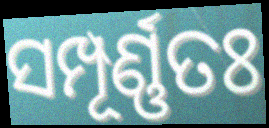
ସମ୍ପୂର୍ଣ୍ଣତଃ